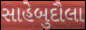
સાહેબુદૌલા